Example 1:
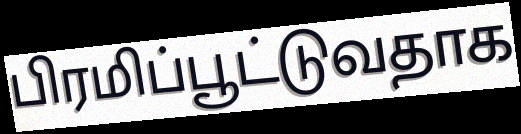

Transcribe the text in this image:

பிரமிப்பூட்டுவதாக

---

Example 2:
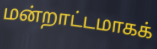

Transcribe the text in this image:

மன்றாட்டமாகக்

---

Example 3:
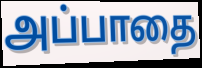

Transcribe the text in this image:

அப்பாதை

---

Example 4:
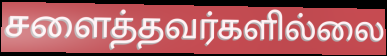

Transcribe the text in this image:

சளைத்தவர்களில்லை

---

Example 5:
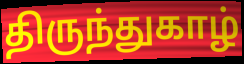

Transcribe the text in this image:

திருந்துகாழ்